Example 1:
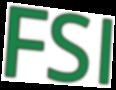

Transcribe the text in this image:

FSI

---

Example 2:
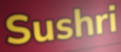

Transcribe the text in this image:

Sushri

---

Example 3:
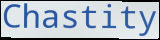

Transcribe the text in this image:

Chastity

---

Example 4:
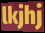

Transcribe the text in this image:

lkjhj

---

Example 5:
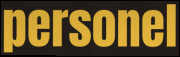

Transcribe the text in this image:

personel